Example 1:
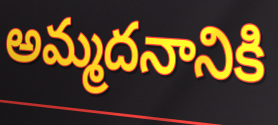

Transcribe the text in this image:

అమ్మదనానికి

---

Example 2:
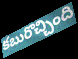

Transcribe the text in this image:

కబురొచ్చింది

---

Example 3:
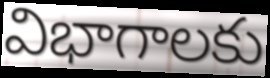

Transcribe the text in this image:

విభాగాలకు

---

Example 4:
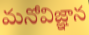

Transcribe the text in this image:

మనోవిజ్ఞాన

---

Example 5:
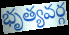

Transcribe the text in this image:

భృత్యవర్గ